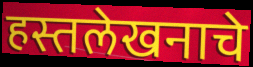
हस्तलेखनाचे